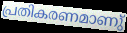
പ്രതികരണമാണു്